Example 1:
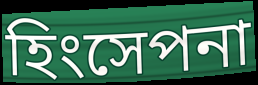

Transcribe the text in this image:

হিংসেপনা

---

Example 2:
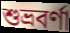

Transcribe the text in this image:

শুভ্রবর্ণা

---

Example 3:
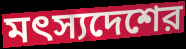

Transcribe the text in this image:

মৎস্যদেশের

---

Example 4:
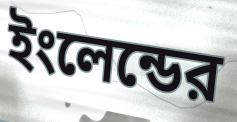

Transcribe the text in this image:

ইংলেন্ডের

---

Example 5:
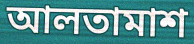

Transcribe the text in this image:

আলতামাশ